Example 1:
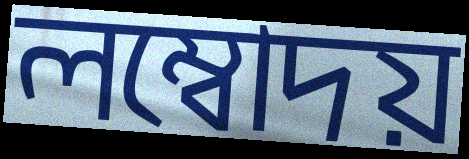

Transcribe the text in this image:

লম্বোদয়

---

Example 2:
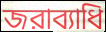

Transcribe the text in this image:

জরাব্যাধি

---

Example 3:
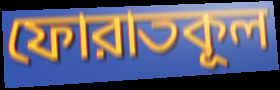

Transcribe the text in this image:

ফোরাতকূল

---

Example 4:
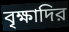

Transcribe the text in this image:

বৃক্ষাদির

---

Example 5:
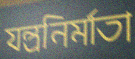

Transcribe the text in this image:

যন্ত্রনির্মাতা